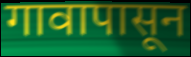
गावापासून